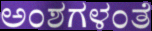
ಅಂಶಗಳಂತೆ